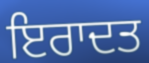
ਇਰਾਦਤ